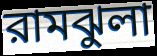
রামঝুলা